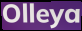
Olleya